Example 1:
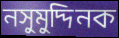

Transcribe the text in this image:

নসুমুদ্দিনক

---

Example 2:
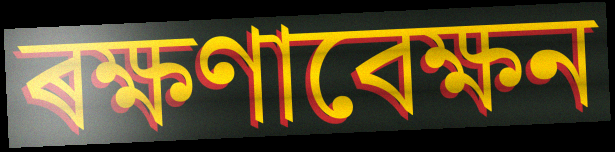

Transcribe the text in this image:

ৰক্ষণাবেক্ষন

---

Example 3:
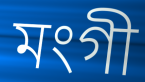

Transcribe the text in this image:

মংগী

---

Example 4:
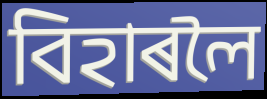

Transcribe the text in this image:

বিহাৰলৈ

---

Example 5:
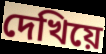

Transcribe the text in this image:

দেখিয়ে